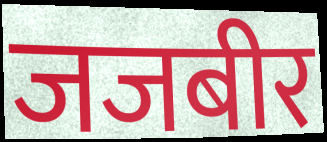
जजबीर